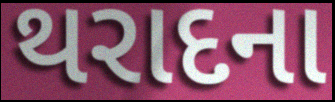
થરાદના